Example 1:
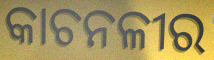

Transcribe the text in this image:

କାଚନଳୀର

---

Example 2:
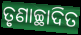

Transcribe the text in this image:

ତୃଣାଚ୍ଛାଦିତ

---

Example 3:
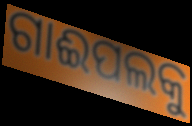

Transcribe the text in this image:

ଗାଈପଲକୁ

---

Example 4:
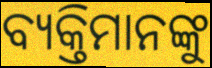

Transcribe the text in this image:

ବ୍ୟକ୍ତିମାନଙ୍କୁ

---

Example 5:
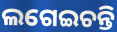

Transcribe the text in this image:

ଲଗେଇଚନ୍ତି